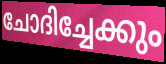
ചോദിച്ചേക്കും